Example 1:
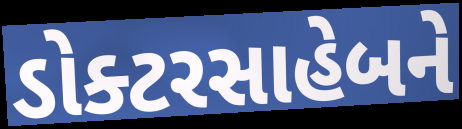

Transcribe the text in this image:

ડોક્ટરસાહેબને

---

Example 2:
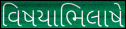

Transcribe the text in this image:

વિષયાભિલાષે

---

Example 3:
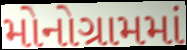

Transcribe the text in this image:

મોનોગ્રામમાં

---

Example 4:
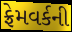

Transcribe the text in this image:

ફ્રેમવર્કની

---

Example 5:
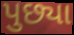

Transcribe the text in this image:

પુછ્યા